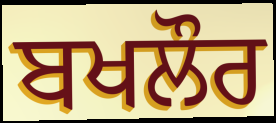
ਬਖਲੌਰ